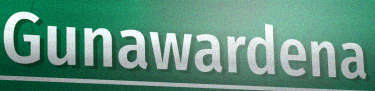
Gunawardena